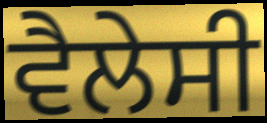
ਵੈਲੇਸੀ